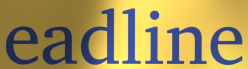
eadline